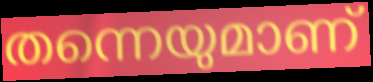
തന്നെയുമാണ്